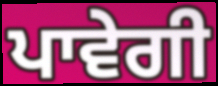
ਪਾਵੇਗੀ